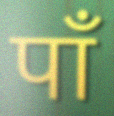
पाँ